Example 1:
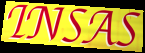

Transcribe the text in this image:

INSAS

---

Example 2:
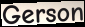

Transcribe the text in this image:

Gerson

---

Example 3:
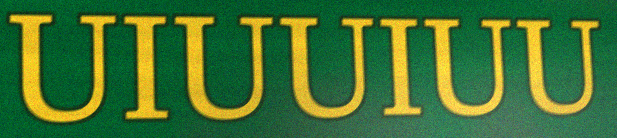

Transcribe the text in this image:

UIUUIUU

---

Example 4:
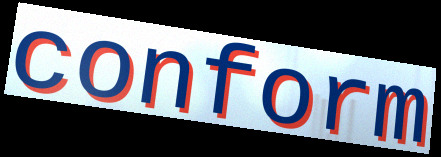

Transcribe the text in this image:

conform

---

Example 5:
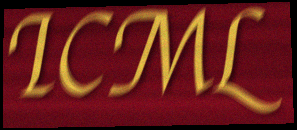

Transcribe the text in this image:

ICML